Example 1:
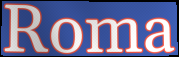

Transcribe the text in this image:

Roma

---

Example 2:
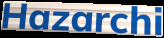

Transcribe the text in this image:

Hazarchi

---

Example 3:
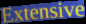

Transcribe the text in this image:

Extensive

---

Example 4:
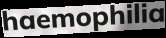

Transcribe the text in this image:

haemophilia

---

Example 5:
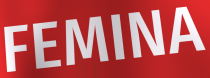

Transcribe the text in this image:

FEMINA